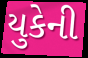
યુકેની